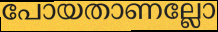
പോയതാണല്ലോ